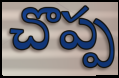
చొప్ప